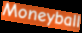
Moneyball